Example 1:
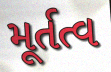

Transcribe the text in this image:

મૂર્તત્વ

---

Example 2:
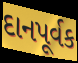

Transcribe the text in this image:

દાનપૂર્વક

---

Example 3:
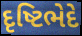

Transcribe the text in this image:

દૃષ્ટિભેદે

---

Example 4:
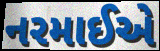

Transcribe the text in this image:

નરમાઈએ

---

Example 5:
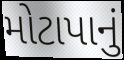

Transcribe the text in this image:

મોટાપાનું